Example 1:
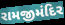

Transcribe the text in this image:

રામજીમંદિર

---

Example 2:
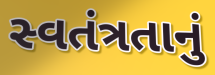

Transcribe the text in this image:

સ્વતંત્રતાનું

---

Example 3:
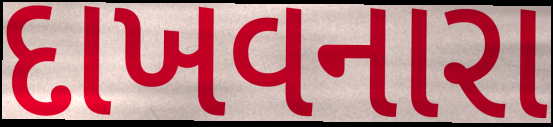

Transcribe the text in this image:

દાખવનારા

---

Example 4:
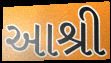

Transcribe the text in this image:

આશ્રી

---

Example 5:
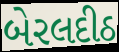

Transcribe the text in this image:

બેરલદીઠ